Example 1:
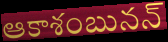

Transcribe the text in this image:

ఆకాశంబునన్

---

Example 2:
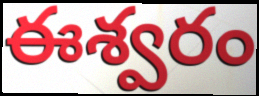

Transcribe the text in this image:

ఈశ్వరం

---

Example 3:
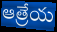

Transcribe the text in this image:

ఆత్రేయ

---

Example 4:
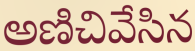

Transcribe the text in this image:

అణిచివేసిన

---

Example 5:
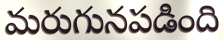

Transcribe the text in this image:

మరుగునపడింది